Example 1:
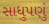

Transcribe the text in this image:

સાધુપણું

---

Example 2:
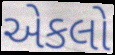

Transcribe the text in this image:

એકલો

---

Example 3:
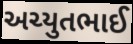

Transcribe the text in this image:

અચ્યુતભાઈ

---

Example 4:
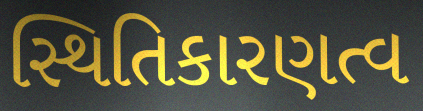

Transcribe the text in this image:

સ્થિતિકારણત્વ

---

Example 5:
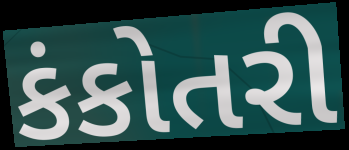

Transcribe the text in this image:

કંકોતરી